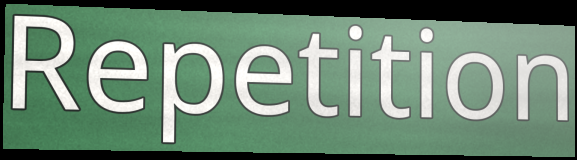
Repetition